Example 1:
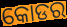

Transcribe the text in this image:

କୋଡର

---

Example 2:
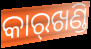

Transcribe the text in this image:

କାର୍‌ଖଣ୍ଡି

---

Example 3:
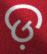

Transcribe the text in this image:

ଡ଼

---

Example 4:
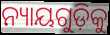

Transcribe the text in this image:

ନ୍ୟାୟଗୁଡ଼ିକୁ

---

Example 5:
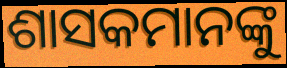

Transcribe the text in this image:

ଶାସକମାନଙ୍କୁ